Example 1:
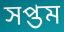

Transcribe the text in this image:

সপ্তম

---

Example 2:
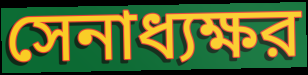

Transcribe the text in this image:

সেনাধ্যক্ষর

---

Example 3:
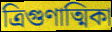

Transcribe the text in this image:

ত্রিগুণাত্মিকা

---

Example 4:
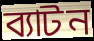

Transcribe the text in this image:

ব্যাটন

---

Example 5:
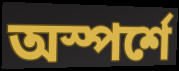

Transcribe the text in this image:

অস্পর্শে